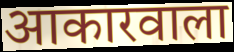
आकारवाला